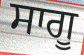
ਸਾਗੂ